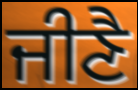
ਜੀਣੈ